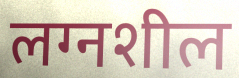
लग्नशील